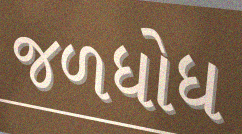
જળધોધ